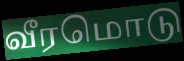
வீரமொடு